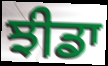
ਝੀਡਾ